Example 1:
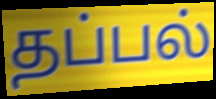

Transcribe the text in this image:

தப்பல்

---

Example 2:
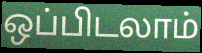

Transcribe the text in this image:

ஒப்பிடலாம்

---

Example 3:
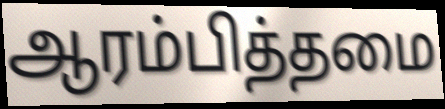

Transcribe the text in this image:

ஆரம்பித்தமை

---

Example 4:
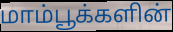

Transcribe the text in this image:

மாம்பூக்களின்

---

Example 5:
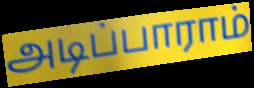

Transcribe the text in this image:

அடிப்பாராம்